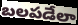
బలపడేలా